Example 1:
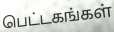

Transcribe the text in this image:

பெட்டகங்கள்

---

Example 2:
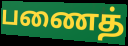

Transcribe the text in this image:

பணைத்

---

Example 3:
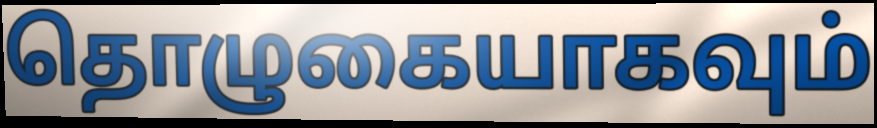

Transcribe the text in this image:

தொழுகையாகவும்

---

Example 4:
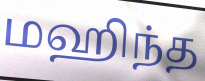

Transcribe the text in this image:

மஹிந்த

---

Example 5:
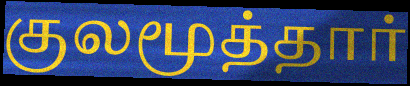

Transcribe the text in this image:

குலமூத்தார்